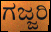
ಗಜ್ಜರಿ